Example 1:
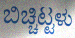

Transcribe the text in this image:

ಬಿಚ್ಚಿಟ್ಟಳು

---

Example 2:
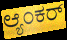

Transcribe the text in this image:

ಆ್ಯಂಕರ್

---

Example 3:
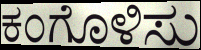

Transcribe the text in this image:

ಕಂಗೊಳಿಸು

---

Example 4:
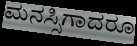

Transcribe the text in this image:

ಮನಸ್ಸಿಗಾದರೂ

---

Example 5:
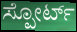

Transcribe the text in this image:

ಸ್ಪೋರ್ಟ್